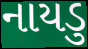
નાયડુ